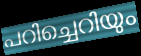
പറിച്ചെറിയും